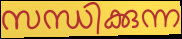
സന്ധിക്കുന്ന